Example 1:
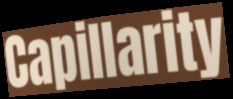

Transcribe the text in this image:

Capillarity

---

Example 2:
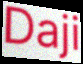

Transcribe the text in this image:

Daji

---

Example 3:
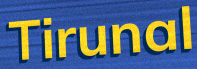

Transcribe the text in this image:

Tirunal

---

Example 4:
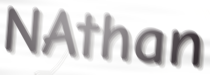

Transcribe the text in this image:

NAthan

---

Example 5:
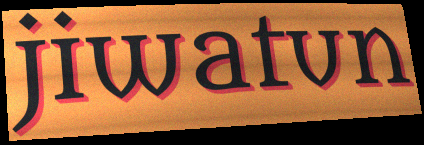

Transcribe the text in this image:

jiwatun